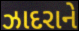
ઝાદરાને